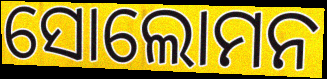
ସୋଲୋମନ